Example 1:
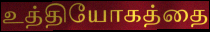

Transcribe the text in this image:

உத்தியோகத்தை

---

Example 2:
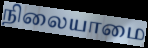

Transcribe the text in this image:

நிலையாமை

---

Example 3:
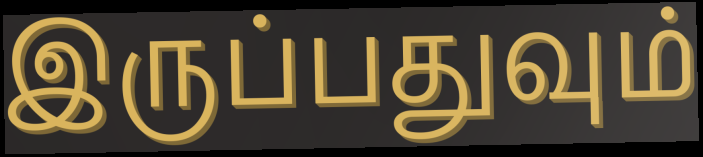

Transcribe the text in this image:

இருப்பதுவும்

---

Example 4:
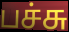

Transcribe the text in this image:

பச்சு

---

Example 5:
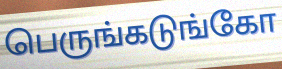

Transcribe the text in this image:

பெருங்கடுங்கோ